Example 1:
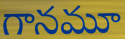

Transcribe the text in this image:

గానమూ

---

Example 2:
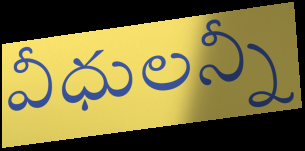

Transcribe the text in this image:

వీధులన్నీ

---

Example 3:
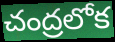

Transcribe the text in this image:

చంద్రలోక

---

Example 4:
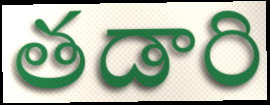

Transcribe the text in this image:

తడారి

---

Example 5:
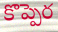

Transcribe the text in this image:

కొప్పెర